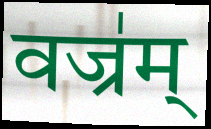
वज्र॑म्